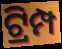
ଟ୍ରିମ୍ପ